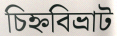
চিহ্নবিভ্রাট